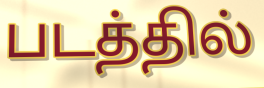
படத்தில்